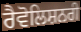
ਰੈਵੋਲਿਸ਼ਨਰੀ